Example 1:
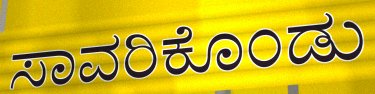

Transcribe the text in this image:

ಸಾವರಿಕೊಂಡು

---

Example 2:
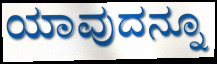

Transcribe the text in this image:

ಯಾವುದನ್ನೂ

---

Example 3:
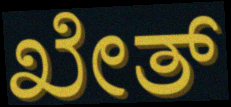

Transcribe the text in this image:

ಖೇತ್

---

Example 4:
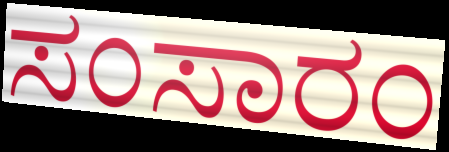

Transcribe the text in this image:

ಸಂಸಾರಂ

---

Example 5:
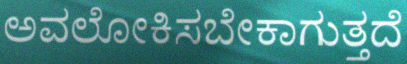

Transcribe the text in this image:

ಅವಲೋಕಿಸಬೇಕಾಗುತ್ತದೆ